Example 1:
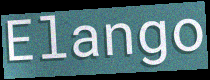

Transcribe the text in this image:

Elango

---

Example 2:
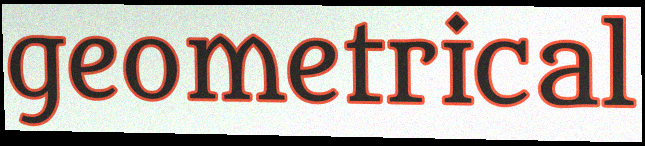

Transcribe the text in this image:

geometrical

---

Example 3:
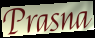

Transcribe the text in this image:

Prasna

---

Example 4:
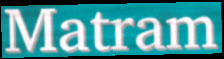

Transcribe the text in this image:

Matram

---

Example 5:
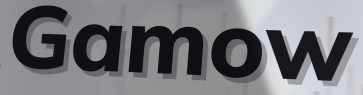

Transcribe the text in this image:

Gamow